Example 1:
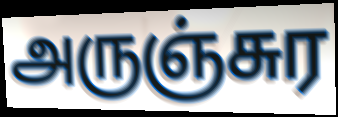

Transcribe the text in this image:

அருஞ்சுர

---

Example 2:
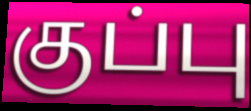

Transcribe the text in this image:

குப்பு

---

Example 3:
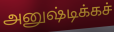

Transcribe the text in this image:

அனுஷ்டிக்கச்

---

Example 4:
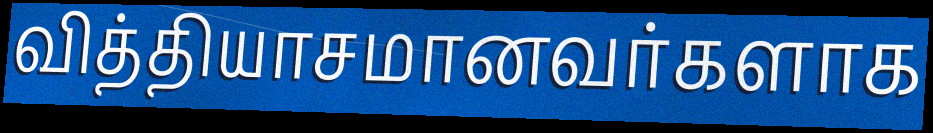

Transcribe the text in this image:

வித்தியாசமானவர்களாக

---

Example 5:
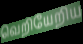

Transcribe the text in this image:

வெறியேறிய